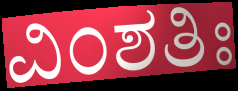
ವಿಂಶತಿಃ